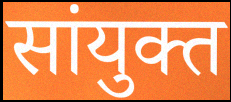
सांयुक्त